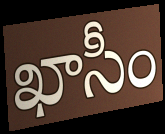
ఖాసీం